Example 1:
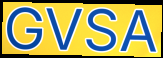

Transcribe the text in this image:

GVSA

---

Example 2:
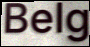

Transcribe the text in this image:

Belg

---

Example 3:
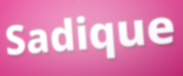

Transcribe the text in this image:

Sadique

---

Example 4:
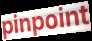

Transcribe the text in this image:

pinpoint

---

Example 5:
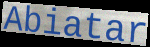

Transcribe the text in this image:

Abiatar